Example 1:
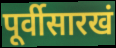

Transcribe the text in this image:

पूर्वीसारखं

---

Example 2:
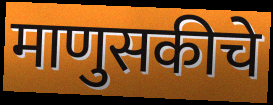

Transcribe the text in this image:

माणुसकीचे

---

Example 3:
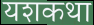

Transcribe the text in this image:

यशकथा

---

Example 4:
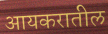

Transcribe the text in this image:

आयकरातील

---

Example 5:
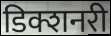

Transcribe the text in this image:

डिक्शनरी